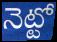
నెట్టో